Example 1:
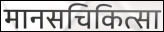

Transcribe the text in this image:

मानसचिकित्सा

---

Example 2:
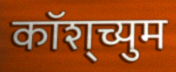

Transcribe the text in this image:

कॉश्च्युम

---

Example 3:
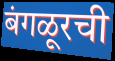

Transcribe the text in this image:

बंगळूरची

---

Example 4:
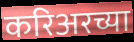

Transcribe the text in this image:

करिअरच्या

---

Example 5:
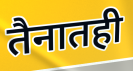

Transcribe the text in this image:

तैनातही